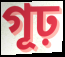
গূঢ়